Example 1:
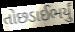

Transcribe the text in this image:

તોછડાઈભર્યું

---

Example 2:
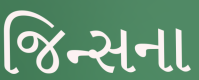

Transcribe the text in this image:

જિન્સના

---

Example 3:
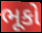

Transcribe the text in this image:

ભૂકો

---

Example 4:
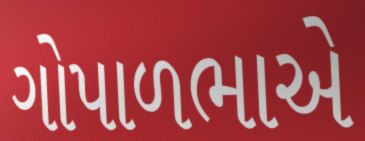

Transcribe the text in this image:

ગોપાળભાએ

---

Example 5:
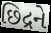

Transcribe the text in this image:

છિદ્રને